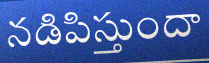
నడిపిస్తుందా